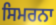
ਸਿਮਰਨਾ